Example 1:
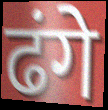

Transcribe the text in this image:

ढंगे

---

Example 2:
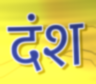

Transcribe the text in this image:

दंश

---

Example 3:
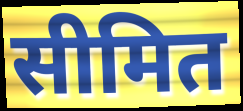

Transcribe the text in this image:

सीमित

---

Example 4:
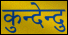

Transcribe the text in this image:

कुन्देन्दु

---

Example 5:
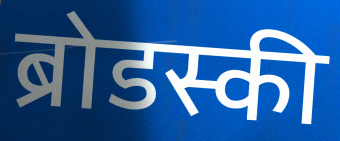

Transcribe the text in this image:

ब्रोडस्की